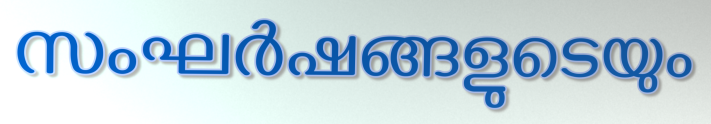
സംഘർഷങ്ങളുടെയും